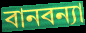
বানবন্যা